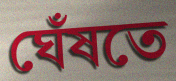
ঘেঁষতে